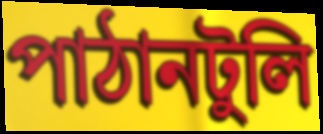
পাঠানটুলি